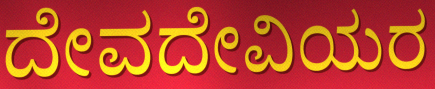
ದೇವದೇವಿಯರ